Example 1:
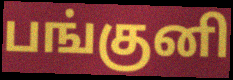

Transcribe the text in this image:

பங்குனி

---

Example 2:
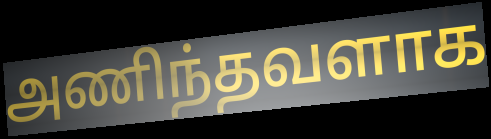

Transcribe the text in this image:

அணிந்தவளாக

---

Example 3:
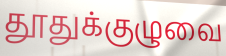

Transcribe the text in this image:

தூதுக்குழுவை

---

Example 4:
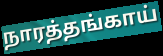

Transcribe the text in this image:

நாரத்தங்காய்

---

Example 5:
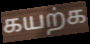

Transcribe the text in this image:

கயற்க